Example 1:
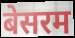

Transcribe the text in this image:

बेसरम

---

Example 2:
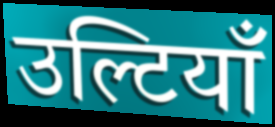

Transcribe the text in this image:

उल्टियाँ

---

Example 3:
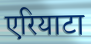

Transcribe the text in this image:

एरियाटा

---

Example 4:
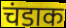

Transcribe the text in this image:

चंडाक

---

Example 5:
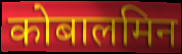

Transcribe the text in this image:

कोबालमिन